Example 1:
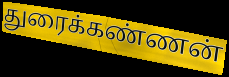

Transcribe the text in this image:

துரைக்கண்ணன்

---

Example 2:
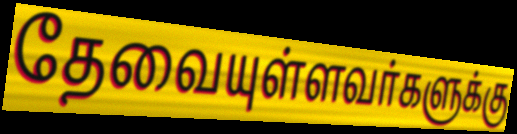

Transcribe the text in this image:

தேவையுள்ளவர்களுக்கு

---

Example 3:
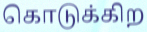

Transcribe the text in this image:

கொடுக்கிற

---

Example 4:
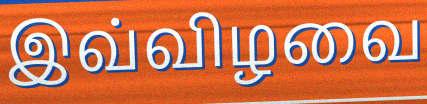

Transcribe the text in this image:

இவ்விழவை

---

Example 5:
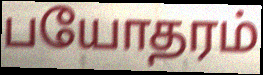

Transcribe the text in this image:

பயோதரம்